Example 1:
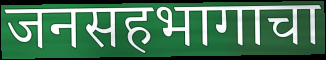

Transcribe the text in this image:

जनसहभागाचा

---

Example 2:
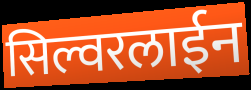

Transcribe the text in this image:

सिल्वरलाईन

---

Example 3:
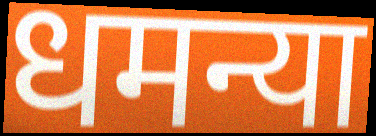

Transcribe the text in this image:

धमन्या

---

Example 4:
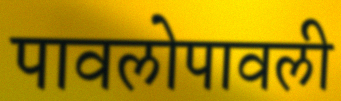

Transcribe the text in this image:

पावलोपावली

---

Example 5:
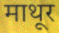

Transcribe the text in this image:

माथूर